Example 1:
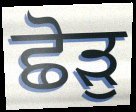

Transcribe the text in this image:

ਛੋੜੁ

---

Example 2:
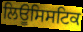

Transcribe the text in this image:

ਲਿਊਸਿਸਟਿਕ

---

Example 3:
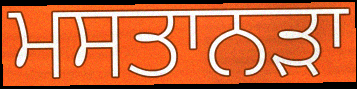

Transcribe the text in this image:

ਮਸਤਾਨੜਾ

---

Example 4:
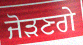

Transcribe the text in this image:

ਜੋੜਣਗੇ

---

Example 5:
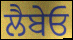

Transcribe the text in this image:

ਲੈਬੇਓ